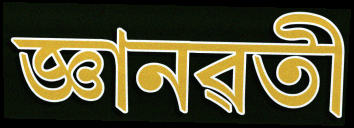
জ্ঞানৱতী